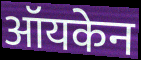
ऑयकेन